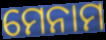
ମେନାମ